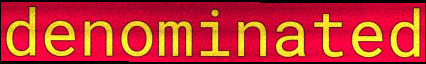
denominated